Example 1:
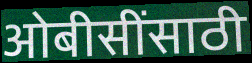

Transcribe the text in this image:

ओबीसींसाठी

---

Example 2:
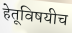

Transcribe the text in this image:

हेतूविषयीच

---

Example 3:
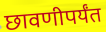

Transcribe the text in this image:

छावणीपर्यंत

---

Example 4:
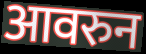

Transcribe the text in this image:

आवरुन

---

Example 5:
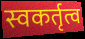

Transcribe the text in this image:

स्वकर्तृत्व